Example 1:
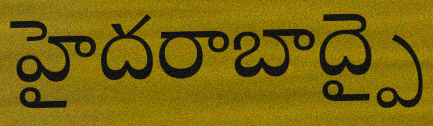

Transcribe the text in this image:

హైదరాబాద్పై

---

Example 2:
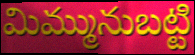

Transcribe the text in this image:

మిమ్మునుబట్టి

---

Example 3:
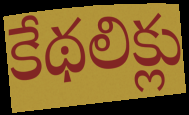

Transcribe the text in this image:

కేథలిక్లు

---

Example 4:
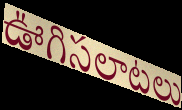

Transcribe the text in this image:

ఊగిసలాటలు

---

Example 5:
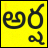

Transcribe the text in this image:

అర్ష